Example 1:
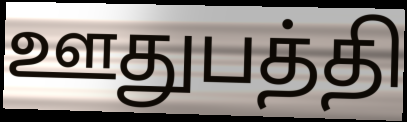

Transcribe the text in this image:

ஊதுபத்தி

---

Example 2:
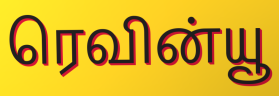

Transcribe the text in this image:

ரெவின்யூ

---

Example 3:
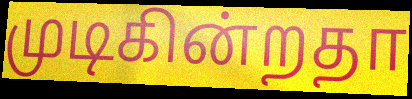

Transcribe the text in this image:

முடிகின்றதா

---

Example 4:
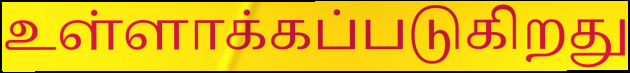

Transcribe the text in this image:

உள்ளாக்கப்படுகிறது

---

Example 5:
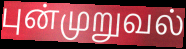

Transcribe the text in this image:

புன்முறுவல்